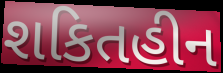
શકિતહીન